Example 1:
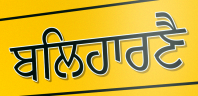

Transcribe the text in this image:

ਬਲਿਹਾਰਣੈ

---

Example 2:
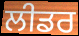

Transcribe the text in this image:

ਲੀਡਰ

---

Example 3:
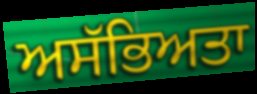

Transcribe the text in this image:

ਅਸੱਭਿਅਤਾ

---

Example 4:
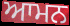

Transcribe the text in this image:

ਆਮਨ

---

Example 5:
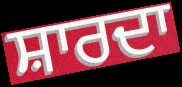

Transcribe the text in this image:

ਸ਼ਾਰਦਾ